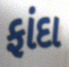
ફાંદા